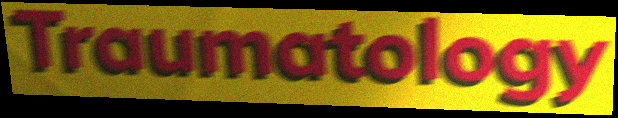
Traumatology